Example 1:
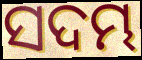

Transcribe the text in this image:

ସଦମ୍ଭ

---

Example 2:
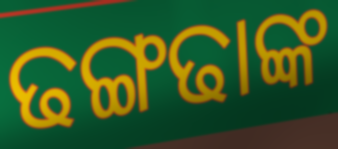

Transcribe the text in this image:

ଢଙ୍ଗଢାଙ୍କ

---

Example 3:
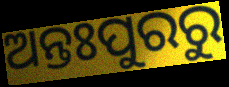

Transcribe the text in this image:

ଅନ୍ତଃପୁରରୁ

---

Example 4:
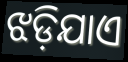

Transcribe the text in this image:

ଝଡ଼ିଯାଏ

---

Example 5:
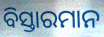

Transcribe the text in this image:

ବିସ୍ତାରମାନ